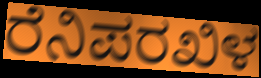
ರೆನಿಪರಖಿಳ